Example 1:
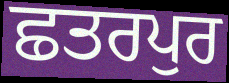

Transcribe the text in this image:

ਛਤਰਪੁਰ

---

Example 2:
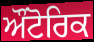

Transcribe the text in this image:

ਔਂਟੋਰਿਕ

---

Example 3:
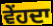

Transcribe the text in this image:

ਵੇਂਹਦਾ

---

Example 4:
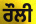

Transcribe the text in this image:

ਰੌਲੀ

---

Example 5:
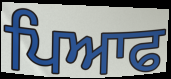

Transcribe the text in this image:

ਪਿਆਫ